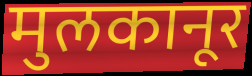
मुलकानूर